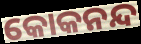
କୋକନନ୍ଦ